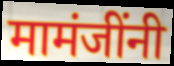
मामंजींनी